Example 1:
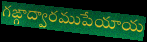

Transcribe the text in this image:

గఙ్గాద్వారముపేయాయ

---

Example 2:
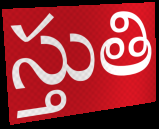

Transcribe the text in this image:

స్తుతి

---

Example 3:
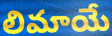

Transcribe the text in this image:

లిమాయే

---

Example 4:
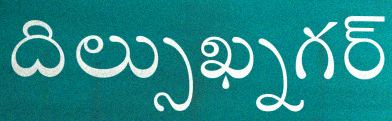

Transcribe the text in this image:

దిల్సుఖ్నగర్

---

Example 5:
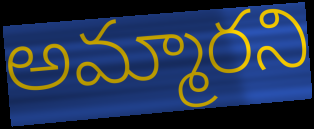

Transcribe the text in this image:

అమ్మారని